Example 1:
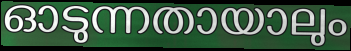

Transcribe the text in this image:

ഓടുന്നതായാലും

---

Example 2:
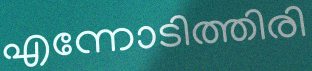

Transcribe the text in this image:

എന്നോടിത്തിരി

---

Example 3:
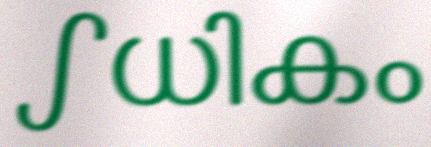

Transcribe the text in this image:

ഽധികം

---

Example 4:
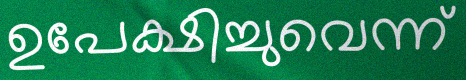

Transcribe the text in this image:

ഉപേക്ഷിച്ചുവെന്ന്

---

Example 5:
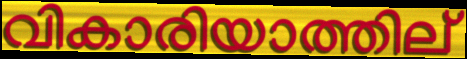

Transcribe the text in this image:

വികാരിയാത്തില്